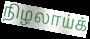
நிழலாய்க்